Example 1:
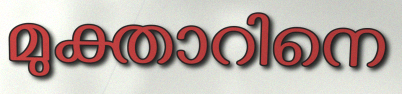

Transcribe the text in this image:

മുക്താറിനെ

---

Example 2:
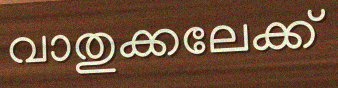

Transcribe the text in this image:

വാതുക്കലേക്ക്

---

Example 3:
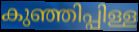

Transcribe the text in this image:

കുഞ്ഞിപ്പിള്ള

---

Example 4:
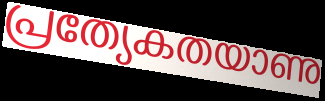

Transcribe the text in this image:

പ്രത്യേകതയാണു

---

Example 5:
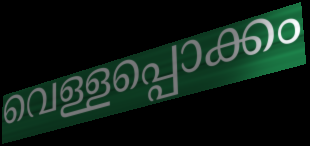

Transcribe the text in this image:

വെള്ളപ്പൊക്കം